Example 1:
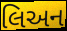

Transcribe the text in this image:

લિઅન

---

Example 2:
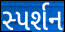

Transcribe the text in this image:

સ્પર્શન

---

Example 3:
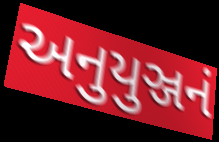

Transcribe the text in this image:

અનુયુઞ્જનં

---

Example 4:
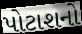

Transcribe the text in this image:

પોટાશનો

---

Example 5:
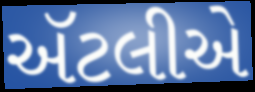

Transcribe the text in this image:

ઍટલીએ